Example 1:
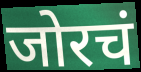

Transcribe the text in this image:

जोरचं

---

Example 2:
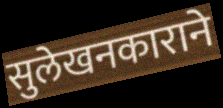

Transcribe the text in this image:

सुलेखनकाराने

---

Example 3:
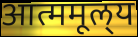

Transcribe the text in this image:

आत्ममूल्य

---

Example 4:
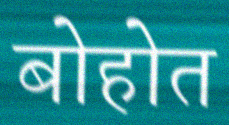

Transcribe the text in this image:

बोहोत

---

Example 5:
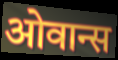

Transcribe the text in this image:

ओवान्स